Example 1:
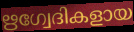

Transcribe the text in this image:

ഋഗ്വേദികളായ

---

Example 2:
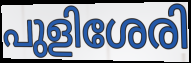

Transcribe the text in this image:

പുളിശേരി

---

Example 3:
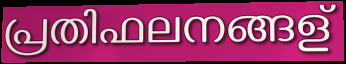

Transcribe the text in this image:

പ്രതിഫലനങ്ങള്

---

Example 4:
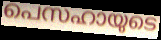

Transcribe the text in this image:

പെസഹായുടെ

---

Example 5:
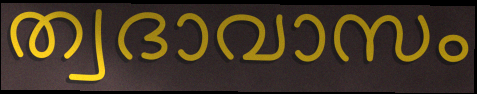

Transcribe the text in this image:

ത്വദാവാസം